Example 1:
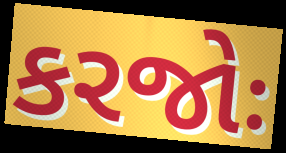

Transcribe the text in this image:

કરજોઃ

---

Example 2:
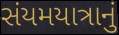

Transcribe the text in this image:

સંયમયાત્રાનું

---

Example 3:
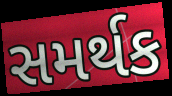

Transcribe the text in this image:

સમર્થક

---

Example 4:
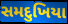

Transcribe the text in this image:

સમદુખિયા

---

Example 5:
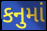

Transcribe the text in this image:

કનુમાં